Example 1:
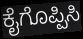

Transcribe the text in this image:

ಕೈಗೊಪ್ಪಿಸಿ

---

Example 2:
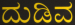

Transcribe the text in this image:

ದುಡಿವ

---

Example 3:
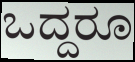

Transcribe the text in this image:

ಒದ್ದರೂ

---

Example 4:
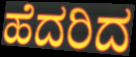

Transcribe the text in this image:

ಹೆದರಿದ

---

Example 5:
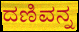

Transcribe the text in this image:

ದಣಿವನ್ನ